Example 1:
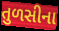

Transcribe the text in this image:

તુળસીના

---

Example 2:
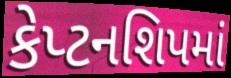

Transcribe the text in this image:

કેપ્ટનશિપમાં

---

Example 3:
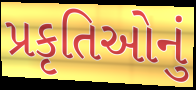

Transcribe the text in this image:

પ્રકૃતિઓનું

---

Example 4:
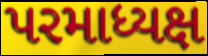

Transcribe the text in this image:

પરમાધ્યક્ષ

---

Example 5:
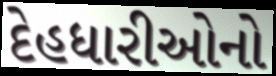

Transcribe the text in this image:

દેહધારીઓનો